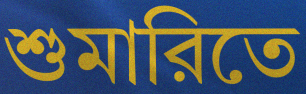
শুমারিতে